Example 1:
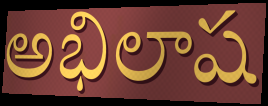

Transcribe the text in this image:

అభిలాష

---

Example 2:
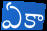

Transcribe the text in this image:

ఏకా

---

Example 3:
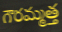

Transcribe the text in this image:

గౌరమ్మత్త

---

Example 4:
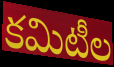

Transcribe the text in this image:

కమిటీల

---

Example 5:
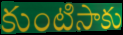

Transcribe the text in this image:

కుంటిసాకు